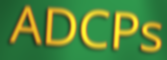
ADCPs